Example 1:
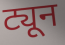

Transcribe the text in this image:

ट्यून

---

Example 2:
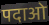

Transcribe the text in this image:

पदाओ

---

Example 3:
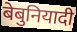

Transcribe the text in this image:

बेबुनियादी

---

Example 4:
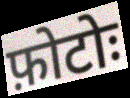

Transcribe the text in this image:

फ़ोटोः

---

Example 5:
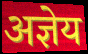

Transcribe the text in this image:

अज्ञेय